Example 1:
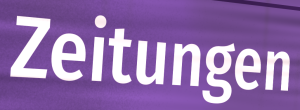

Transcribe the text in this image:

Zeitungen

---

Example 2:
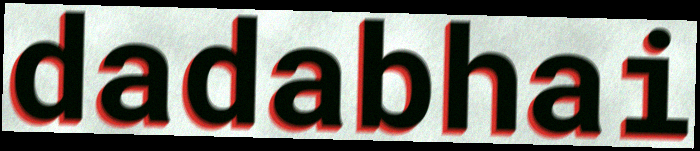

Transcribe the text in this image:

dadabhai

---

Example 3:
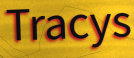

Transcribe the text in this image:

Tracys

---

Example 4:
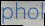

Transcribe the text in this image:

phol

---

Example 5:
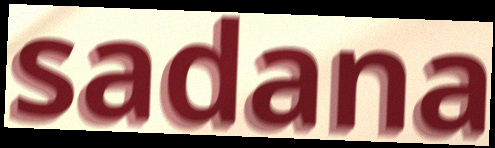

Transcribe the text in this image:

sadana